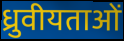
ध्रुवीयताओं